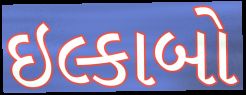
ઇલ્કાબો